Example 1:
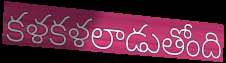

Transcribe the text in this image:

కళకళలాడుతోంది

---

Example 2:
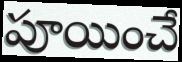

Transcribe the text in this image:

పూయించే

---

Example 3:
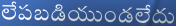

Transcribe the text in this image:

లేపబడియుండలేదు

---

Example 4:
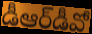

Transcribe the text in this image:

డీఆర్‌డీవో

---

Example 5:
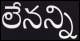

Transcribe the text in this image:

లేనన్ని